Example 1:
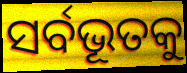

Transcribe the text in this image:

ସର୍ବଭୂତକୁ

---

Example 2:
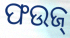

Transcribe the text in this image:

ଫଉଜ୍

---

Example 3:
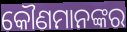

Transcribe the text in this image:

କୌଣମାନଙ୍କର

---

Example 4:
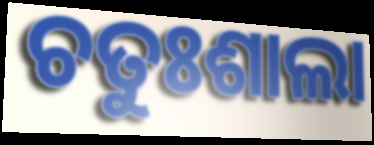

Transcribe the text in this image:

ଚତୁଃଶାଲା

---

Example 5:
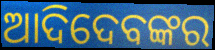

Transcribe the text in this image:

ଆଦିଦେବଙ୍କର